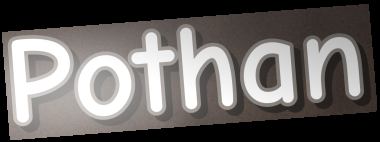
Pothan